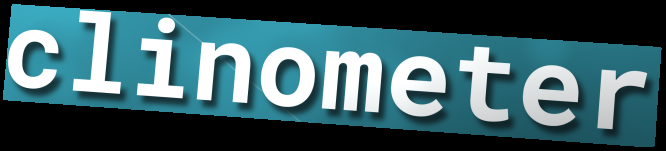
clinometer